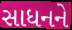
સાધનને